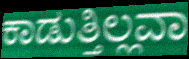
ಕಾಡುತ್ತಿಲ್ಲವಾ